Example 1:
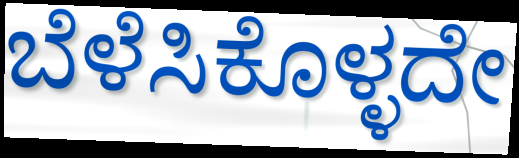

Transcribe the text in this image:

ಬೆಳೆಸಿಕೊಳ್ಳದೇ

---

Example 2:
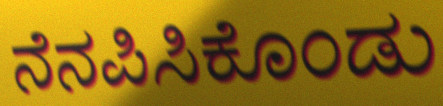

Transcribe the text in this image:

ನೆನಪಿಸಿಕೊಂಡು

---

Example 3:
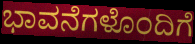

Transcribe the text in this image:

ಭಾವನೆಗಳೊಂದಿಗೆ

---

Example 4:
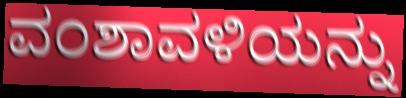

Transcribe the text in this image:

ವಂಶಾವಳಿಯನ್ನು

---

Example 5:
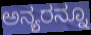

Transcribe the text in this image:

ಅನ್ಯರನ್ನೂ